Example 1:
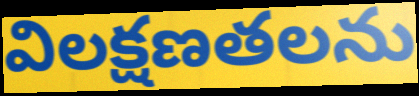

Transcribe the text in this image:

విలక్షణతలను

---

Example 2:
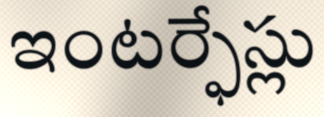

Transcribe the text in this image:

ఇంటర్ఫేస్లు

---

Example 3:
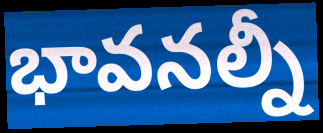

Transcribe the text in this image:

భావనల్నీ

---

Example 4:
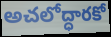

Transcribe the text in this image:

అచలోద్ధారకో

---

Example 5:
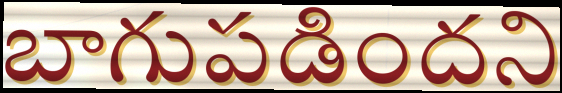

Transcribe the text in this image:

బాగుపడిందని